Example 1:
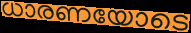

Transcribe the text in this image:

ധാരണയോടെ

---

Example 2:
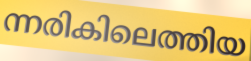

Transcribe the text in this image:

ന്നരികിലെത്തിയ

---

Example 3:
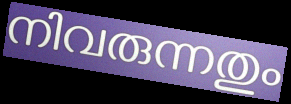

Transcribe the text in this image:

നിവരുന്നതും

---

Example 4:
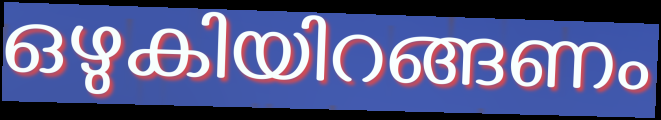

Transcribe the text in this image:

ഒഴുകിയിറങ്ങണം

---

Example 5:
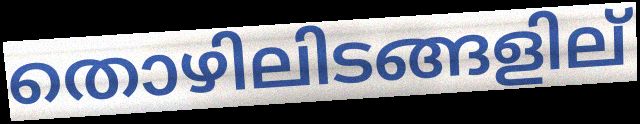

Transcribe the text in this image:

തൊഴിലിടങ്ങളില്